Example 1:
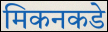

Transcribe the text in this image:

मिकनकडे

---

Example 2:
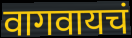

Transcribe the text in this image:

वागवायचं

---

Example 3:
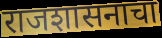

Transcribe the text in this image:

राजशासनाचा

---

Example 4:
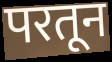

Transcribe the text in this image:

परतून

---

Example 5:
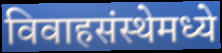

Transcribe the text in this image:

विवाहसंस्थेमध्ये